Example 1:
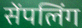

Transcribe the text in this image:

सेंपलिंग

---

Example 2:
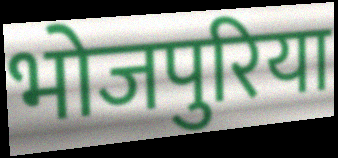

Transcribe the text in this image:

भोजपुरिया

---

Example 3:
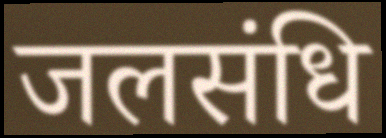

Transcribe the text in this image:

जलसंधि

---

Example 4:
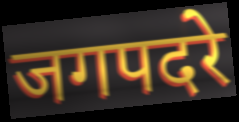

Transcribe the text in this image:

जगपदरे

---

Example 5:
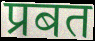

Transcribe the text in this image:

प्रबत